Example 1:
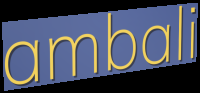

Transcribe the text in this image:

ambali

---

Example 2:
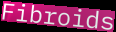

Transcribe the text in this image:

Fibroids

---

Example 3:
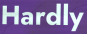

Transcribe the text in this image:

Hardly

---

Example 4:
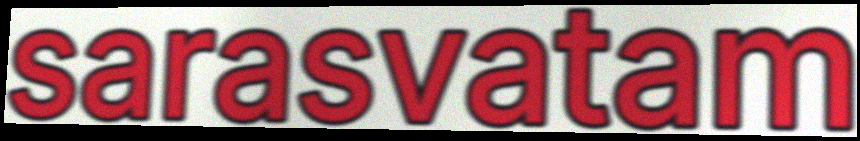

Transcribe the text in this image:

sarasvatam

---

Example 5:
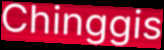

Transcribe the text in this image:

Chinggis